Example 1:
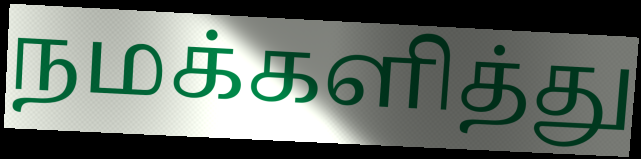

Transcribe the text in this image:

நமக்களித்து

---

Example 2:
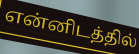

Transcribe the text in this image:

என்னிடத்தில்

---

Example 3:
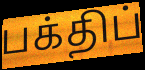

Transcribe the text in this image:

பக்திப்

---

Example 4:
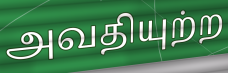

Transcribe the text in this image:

அவதியுற்ற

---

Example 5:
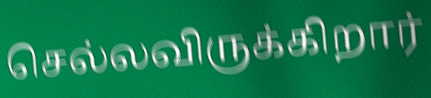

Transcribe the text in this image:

செல்லவிருக்கிறார்